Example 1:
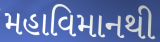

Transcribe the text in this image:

મહાવિમાનથી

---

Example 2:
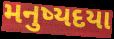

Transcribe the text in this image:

મનુષ્યદયા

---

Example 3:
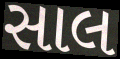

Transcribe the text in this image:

સાલ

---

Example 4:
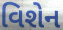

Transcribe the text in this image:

વિશેન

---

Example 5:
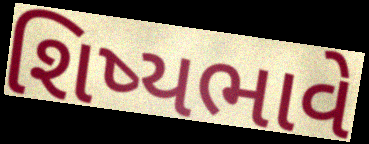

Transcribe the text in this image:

શિષ્યભાવે